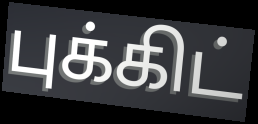
புக்கிட்